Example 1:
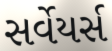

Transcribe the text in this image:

સર્વેયર્સ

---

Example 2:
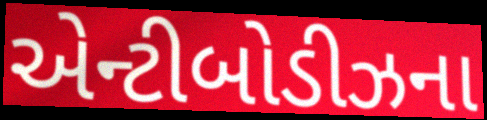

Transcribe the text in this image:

એન્ટીબોડીઝના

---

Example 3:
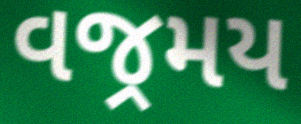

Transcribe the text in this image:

વજ્રમય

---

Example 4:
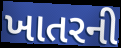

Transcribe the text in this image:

ખાતરની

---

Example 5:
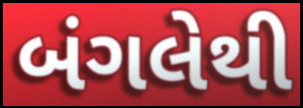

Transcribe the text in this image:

બંગલેથી